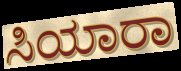
ಸಿಯಾರಾ